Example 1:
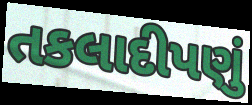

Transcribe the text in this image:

તકલાદીપણું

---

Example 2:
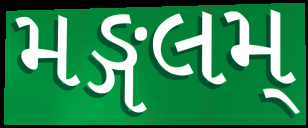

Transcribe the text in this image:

મઙ્ગલમ્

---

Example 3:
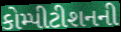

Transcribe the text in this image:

કોમ્પીટીશનની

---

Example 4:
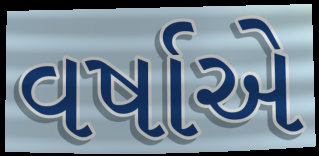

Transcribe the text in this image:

વર્ષાએ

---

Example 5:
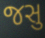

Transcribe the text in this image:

જસુ